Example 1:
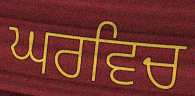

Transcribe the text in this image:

ਘਰਵਿਚ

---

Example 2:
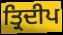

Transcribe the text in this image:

ਤ੍ਰਿਦੀਪ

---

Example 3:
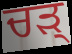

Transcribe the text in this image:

ਚੜ੍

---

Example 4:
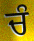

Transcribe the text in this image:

ਚੰ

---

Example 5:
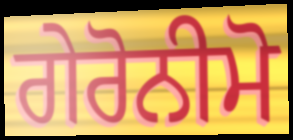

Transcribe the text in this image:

ਗੇਰੋਨੀਮੋ